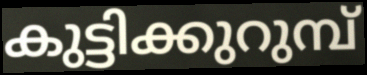
കുട്ടിക്കുറുമ്പ്